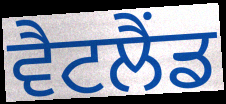
ਵੈਟਲੈਂਡ